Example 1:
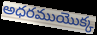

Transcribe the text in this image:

అధరముయొక్క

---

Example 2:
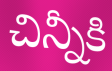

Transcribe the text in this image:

చిన్నీకి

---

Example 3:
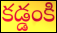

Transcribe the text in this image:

కడ్డంకి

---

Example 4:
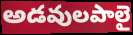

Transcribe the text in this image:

అడవులపాలై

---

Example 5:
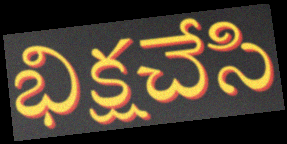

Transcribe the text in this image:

భిక్షచేసి